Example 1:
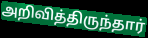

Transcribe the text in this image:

அறிவித்திருந்தார்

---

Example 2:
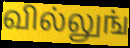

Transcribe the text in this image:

வில்லுங்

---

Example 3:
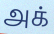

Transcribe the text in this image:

அக்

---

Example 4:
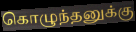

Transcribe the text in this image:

கொழுந்தனுக்கு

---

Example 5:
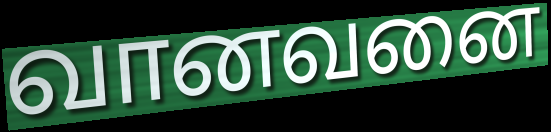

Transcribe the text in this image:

வானவனை